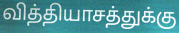
வித்தியாசத்துக்கு